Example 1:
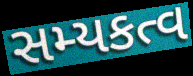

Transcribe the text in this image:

સમ્યકત્વ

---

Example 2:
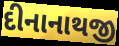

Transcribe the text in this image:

દીનાનાથજી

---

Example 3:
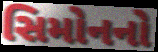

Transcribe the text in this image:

સિમોનનો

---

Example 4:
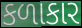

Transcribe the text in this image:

કળાકાર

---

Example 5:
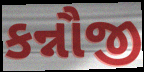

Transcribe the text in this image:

કન્નૌજી